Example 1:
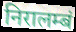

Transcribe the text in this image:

निरालम्बं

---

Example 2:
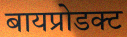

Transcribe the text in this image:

बायप्रोडक्ट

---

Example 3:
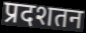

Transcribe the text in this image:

प्रदशतन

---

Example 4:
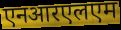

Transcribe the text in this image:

एनआरएलएम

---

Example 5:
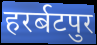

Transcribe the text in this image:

हरर्बटपुर